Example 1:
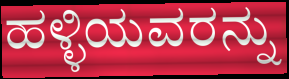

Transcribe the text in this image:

ಹಳ್ಳಿಯವರನ್ನು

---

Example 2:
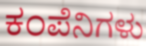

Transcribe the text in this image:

ಕಂಪೆನಿಗಳು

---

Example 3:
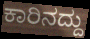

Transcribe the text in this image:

ಕಾರಿನದ್ದು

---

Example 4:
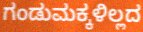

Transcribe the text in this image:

ಗಂಡುಮಕ್ಕಳಿಲ್ಲದ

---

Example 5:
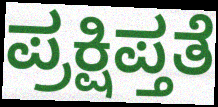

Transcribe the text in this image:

ಪ್ರಕ್ಷಿಪ್ತತೆ